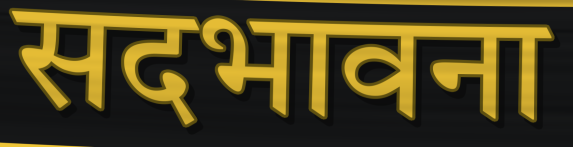
सदभावना